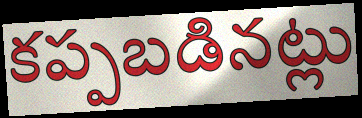
కప్పబడినట్లు